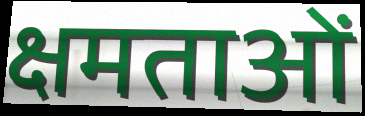
क्षमताओं